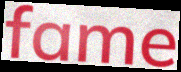
fame